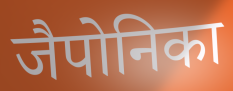
जैपोनिका